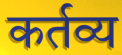
कर्तव्य